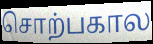
சொற்பகால